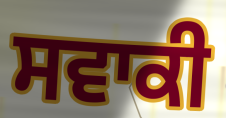
ਸਵਾਕੀ